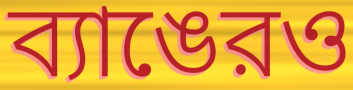
ব্যাঙেরও